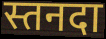
स्तनदा